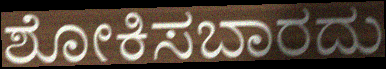
ಶೋಕಿಸಬಾರದು